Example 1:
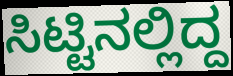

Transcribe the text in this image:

ಸಿಟ್ಟಿನಲ್ಲಿದ್ದ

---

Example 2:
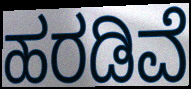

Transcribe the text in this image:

ಹರಡಿವೆ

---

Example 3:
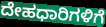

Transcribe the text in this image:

ದೇಹಧಾರಿಗಳಿಗೆ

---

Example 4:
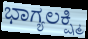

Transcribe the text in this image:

ಭಾಗ್ಯಲಕ್ಷ್ಮಿ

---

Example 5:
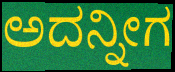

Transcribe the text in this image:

ಅದನ್ನೀಗ